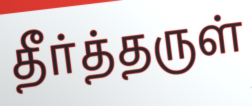
தீர்த்தருள்